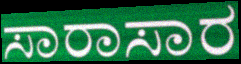
ಸಾರಾಸಾರ